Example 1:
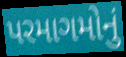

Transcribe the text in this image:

પરમાગમોનું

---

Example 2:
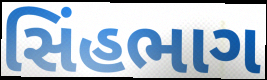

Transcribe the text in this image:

સિંહભાગ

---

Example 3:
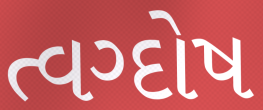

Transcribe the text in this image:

ત્વગ્દોષ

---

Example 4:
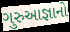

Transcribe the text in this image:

ગુરુઆજ્ઞાનો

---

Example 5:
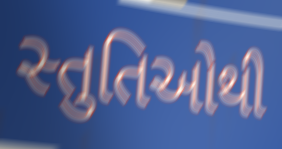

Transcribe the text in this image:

સ્તુતિઓથી